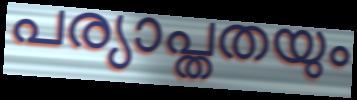
പര്യാപ്തതയും